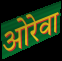
ओरेवा